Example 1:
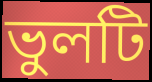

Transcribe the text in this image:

ভুলটি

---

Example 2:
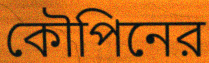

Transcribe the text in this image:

কৌপিনের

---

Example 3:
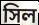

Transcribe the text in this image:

সিল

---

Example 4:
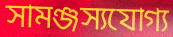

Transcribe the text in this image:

সামঞ্জস্যযোগ্য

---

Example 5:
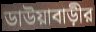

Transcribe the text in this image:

ডাউয়াবাড়ীর